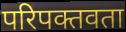
परिपक्तवता